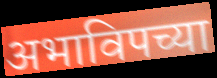
अभाविपच्या